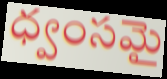
ధ్వంసమై